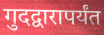
गुदद्वारापर्यंत